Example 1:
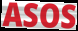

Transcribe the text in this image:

ASOS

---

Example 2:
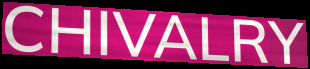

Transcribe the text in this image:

CHIVALRY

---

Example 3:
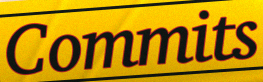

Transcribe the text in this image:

Commits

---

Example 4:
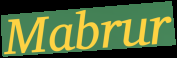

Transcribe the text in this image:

Mabrur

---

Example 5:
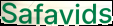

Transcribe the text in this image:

Safavids